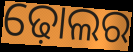
ଢ଼ୋଲର